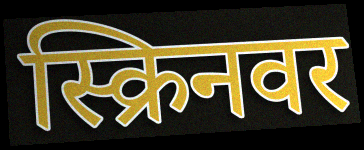
स्क्रिनवर